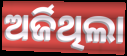
ଅର୍ଜିଥିଲା